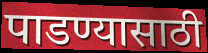
पाडण्यासाठी